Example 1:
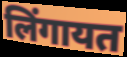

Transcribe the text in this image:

लिंगायत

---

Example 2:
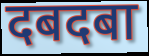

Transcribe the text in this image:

दबदबा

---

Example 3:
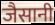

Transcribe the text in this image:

जैसानी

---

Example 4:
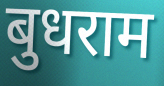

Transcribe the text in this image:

बुधराम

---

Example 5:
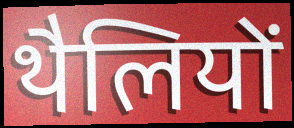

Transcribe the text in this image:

थैलियों